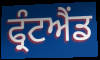
ਫ੍ਰੰਟਐਂਡ